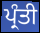
ਪ੍ਰੰਤੀ